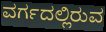
ವರ್ಗದಲ್ಲಿರುವ